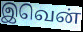
இவென்